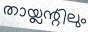
തായ്ലന്റിലും